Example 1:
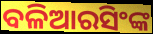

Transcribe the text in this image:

ବଳିଆରସିଂଙ୍କ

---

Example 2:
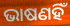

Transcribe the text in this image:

ଭାଷଣହିଁ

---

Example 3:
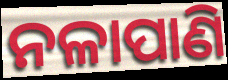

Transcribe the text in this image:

ନଳାପାଣି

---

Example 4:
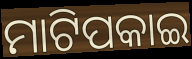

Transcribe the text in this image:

ମାଟିପକାଇ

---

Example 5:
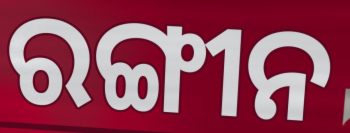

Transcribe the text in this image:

ରଙ୍ଗୀନ